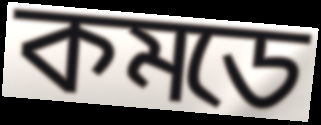
কমডে